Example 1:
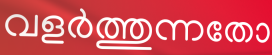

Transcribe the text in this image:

വളർത്തുന്നതോ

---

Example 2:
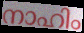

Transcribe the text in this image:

നാഹിം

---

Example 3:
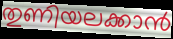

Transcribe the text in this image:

തുണിയലക്കാൻ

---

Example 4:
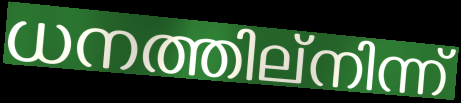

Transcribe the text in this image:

ധനത്തില്നിന്ന്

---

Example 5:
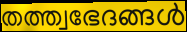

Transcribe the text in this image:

തത്ത്വഭേദങ്ങൾ